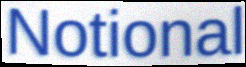
Notional